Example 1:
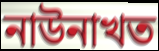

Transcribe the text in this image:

নাউনাখত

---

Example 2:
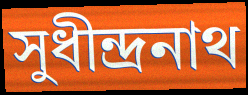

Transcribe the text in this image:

সুধীন্দ্রনাথ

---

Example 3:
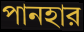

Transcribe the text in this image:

পানহার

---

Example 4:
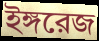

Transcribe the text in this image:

ইঙ্গরেজ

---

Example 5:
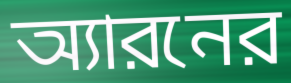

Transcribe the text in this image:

অ্যারনের